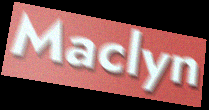
Maclyn